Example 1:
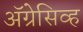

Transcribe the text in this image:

ॲग्रेसिव्ह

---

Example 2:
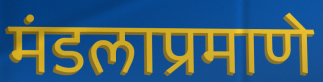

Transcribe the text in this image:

मंडलाप्रमाणे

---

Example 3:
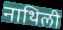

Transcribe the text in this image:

नाथिली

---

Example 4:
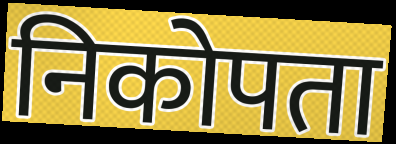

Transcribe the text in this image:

निकोपता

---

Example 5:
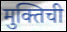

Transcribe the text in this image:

मुक्तिची